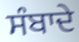
ਸੰਬਾਦੇ